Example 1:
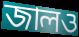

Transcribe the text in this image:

জালও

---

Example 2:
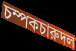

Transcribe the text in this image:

চম্পকচারুদল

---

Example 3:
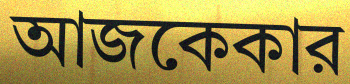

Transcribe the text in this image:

আজকেকার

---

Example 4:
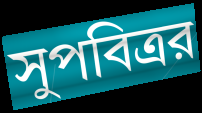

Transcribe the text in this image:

সুপবিত্রর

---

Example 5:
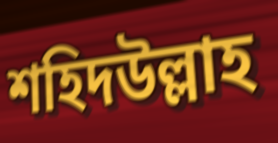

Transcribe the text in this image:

শহিদউল্লাহ